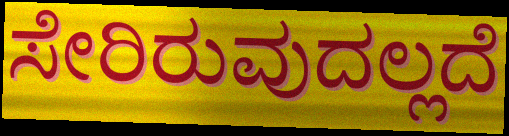
ಸೇರಿರುವುದಲ್ಲದೆ